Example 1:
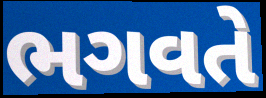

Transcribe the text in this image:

ભગવતે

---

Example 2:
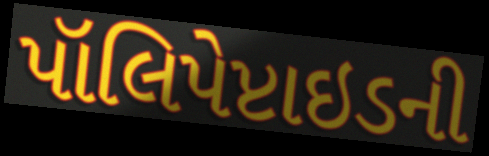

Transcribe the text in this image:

પૉલિપેપ્ટાઇડની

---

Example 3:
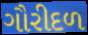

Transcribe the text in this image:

ગૌરીદળ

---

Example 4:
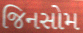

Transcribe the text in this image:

જિનસોમ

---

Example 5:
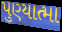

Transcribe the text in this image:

પુણ્યાત્મા